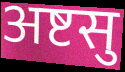
अष्टसु